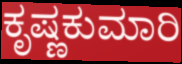
ಕೃಷ್ಣಕುಮಾರಿ